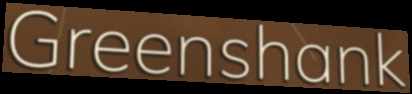
Greenshank